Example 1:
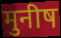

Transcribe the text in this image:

मुनीष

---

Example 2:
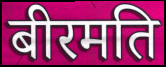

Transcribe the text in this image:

बीरमति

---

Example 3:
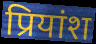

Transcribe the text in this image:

प्रियांश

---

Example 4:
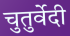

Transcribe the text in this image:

चुतुर्वेदी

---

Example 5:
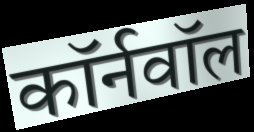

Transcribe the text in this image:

कॉर्नवॉल